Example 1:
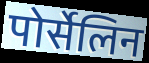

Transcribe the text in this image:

पोर्सेलिन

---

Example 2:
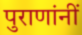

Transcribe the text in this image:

पुराणांनीं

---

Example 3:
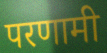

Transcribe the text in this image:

परणामी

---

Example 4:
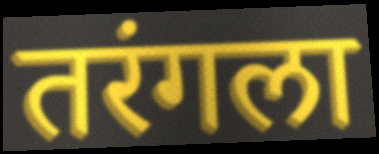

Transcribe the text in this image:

तरंगला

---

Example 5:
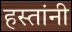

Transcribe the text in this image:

हस्तांनी